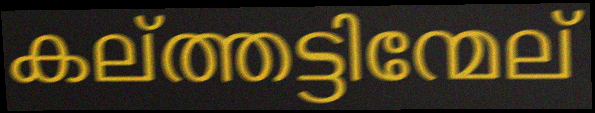
കല്ത്തട്ടിന്മേല്